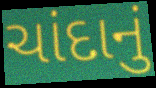
ચાંદાનું